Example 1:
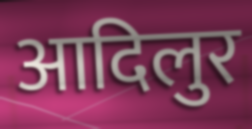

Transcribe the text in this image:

आदिलुर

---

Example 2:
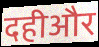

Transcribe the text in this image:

दहीऔर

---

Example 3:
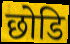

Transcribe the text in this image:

छोडि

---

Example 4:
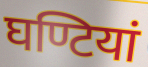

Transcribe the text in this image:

घण्टियां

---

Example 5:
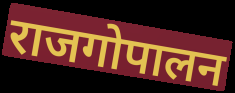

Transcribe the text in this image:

राजगोपालन